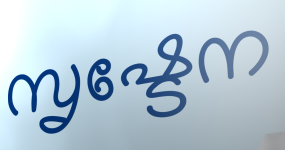
സൃഷ്ടേന